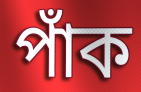
পাঁক